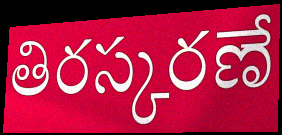
తిరస్కరణే